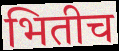
भितीच